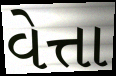
વેત્તા